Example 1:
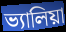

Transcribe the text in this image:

ভ্যালিয়া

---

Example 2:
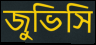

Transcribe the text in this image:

জুভিসি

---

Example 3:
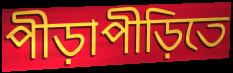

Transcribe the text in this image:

পীড়াপীড়িতে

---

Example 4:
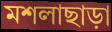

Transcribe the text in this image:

মশলাছাড়া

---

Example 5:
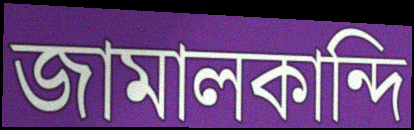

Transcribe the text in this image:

জামালকান্দি